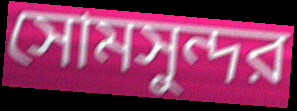
সোমসুন্দর